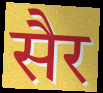
सैर